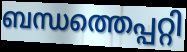
ബന്ധത്തെപ്പറ്റി